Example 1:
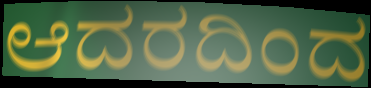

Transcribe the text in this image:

ಆದರದಿಂದ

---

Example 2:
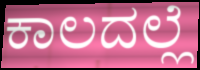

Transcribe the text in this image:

ಕಾಲದಲ್ಲೆ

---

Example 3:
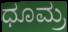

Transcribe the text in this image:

ಧೂಮ್ರ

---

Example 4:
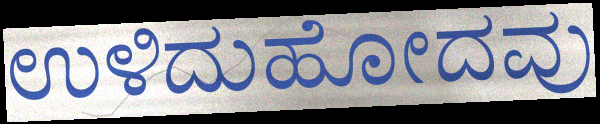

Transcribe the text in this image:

ಉಳಿದುಹೋದವು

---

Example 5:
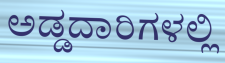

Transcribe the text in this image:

ಅಡ್ಡದಾರಿಗಳಲ್ಲಿ